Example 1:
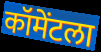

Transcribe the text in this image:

कॉमेंटला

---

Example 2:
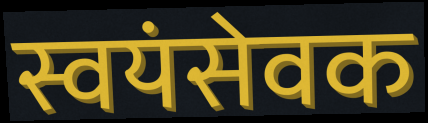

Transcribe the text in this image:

स्वयंसेवक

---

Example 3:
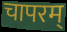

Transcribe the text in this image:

चापरम्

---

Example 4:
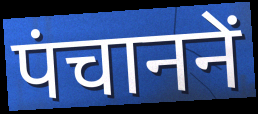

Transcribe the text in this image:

पंचाननें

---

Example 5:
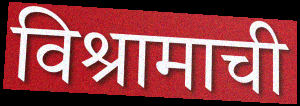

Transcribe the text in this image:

विश्रामाची